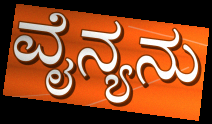
ವೈನ್ಯನು